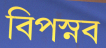
বিপস্নব